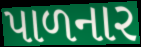
પાળનાર